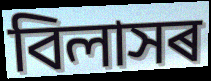
বিলাসৰ